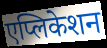
एप्लिकेशन